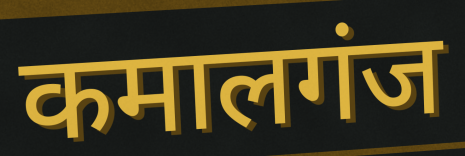
कमालगंज